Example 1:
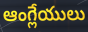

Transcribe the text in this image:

ఆంగ్లేయులు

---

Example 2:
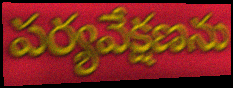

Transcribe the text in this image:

పర్యవేక్షణను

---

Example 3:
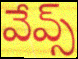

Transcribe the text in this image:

వేవ్స్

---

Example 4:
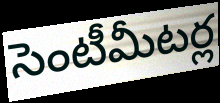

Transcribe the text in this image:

సెంటీమీటర్ల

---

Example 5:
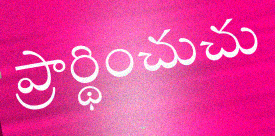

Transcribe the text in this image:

ప్రార్థించుచు